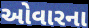
ઓવારના